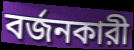
বর্জনকারী